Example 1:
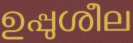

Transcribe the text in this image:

ഉപ്പുശീല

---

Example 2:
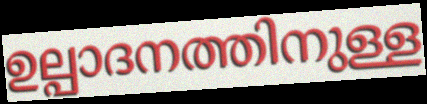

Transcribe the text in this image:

ഉല്പാദനത്തിനുള്ള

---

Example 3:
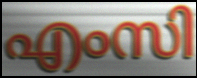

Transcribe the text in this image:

എംസി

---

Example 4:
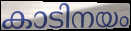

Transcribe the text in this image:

കാടിനയം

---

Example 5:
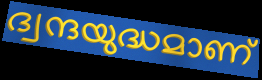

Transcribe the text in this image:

ദ്വന്ദയുദ്ധമാണ്